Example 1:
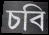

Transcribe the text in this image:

চবি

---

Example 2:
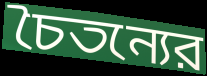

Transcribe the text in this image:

চৈতন্যের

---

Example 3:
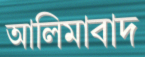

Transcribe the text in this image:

আলিমাবাদ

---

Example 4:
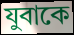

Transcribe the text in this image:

যুবাকে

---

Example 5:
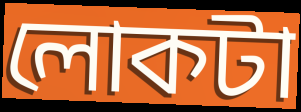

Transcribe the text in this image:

লোকটা